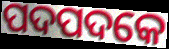
ପଦପଦକେ